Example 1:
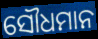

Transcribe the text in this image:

ସୌଧମାନ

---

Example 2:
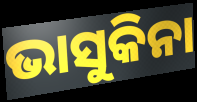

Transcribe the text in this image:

ଭାସୁକିନା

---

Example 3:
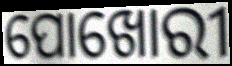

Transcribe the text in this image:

ପୋଖୋରୀ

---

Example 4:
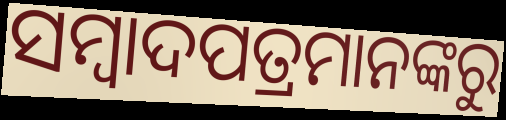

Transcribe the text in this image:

ସମ୍ୱାଦପତ୍ରମାନଙ୍କରୁ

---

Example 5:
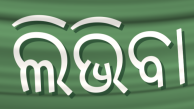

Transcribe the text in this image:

ଲିଭିବା